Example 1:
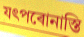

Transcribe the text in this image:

যৎপৰোনাস্তি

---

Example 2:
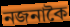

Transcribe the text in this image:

নজনাকৈ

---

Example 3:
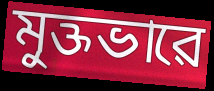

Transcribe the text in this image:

মুক্তভাৱে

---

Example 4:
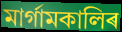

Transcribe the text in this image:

মাৰ্গামকালিৰ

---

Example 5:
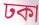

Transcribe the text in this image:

ঢকা